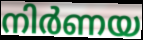
നിർണയ